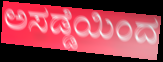
ಅಸಡ್ಡೆಯಿಂದ